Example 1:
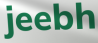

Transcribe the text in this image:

jeebh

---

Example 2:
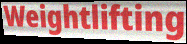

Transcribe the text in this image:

Weightlifting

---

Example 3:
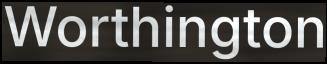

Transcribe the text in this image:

Worthington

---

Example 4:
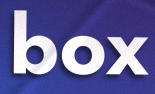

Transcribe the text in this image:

box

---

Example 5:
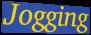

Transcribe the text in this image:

Jogging